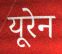
यूरेन